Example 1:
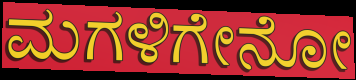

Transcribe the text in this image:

ಮಗಳಿಗೇನೋ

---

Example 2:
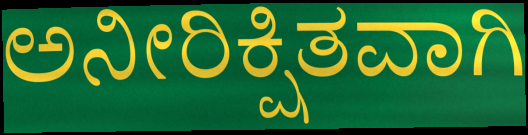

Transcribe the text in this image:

ಅನೀರಿಕ್ಷಿತವಾಗಿ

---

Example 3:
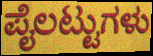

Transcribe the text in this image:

ಪೈಲಟ್ಟುಗಳು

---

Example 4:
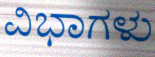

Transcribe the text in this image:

ವಿಭಾಗಳು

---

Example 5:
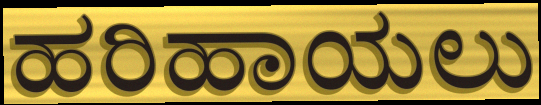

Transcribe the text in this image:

ಹರಿಹಾಯಲು